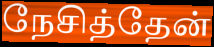
நேசித்தேன்